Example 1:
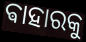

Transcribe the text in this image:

ଵାହାରକୁ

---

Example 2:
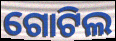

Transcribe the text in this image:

ଗୋଟିଲ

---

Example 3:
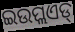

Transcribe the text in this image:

ଇଉପ୍ଲଏଡ୍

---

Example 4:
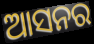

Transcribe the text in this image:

ଆସନର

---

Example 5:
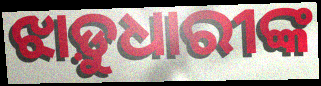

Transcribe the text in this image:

ଝାଡ଼ୁଧାରୀଙ୍କ